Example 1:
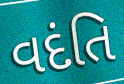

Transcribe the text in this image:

વદંતિ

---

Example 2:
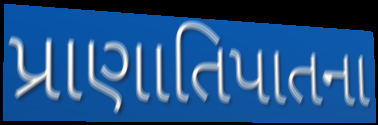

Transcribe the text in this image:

પ્રાણાતિપાતના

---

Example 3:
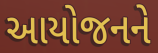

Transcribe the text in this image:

આયોજનને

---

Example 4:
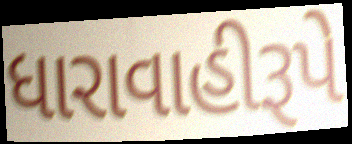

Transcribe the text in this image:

ધારાવાહીરૂપે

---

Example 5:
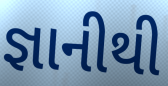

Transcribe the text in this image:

જ્ઞાનીથી